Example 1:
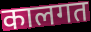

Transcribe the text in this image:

कालगत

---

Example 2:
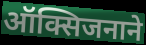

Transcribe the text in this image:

ऑक्सिजनाने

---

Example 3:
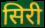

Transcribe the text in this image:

सिरी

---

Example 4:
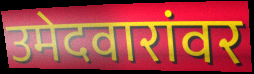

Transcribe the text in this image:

उमेदवारांवर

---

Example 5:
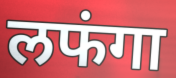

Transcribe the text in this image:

लफंगा